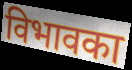
विभावका